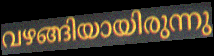
വഴങ്ങിയായിരുന്നു